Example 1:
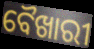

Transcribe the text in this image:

ବୈଖାରୀ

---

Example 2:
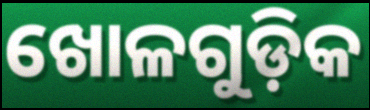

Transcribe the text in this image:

ଖୋଳଗୁଡ଼ିକ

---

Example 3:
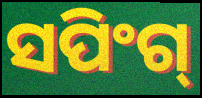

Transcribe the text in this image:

ସପିଂଗ୍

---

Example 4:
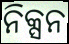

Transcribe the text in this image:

ନିକ୍ସନ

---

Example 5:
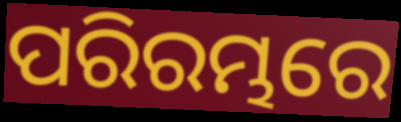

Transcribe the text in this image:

ପରିରମ୍ଭରେ